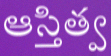
ఆస్తిత్వ